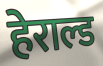
हेराल्ड